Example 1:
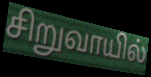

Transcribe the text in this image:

சிறுவாயில்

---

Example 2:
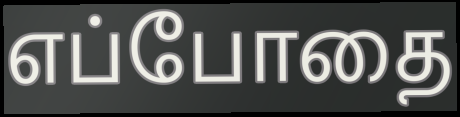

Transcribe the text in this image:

எப்போதை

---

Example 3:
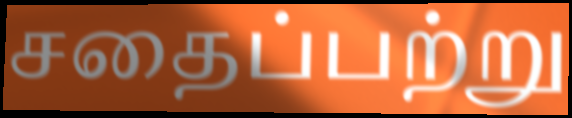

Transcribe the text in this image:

சதைப்பற்று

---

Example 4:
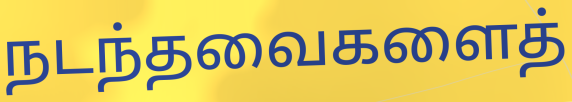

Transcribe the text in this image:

நடந்தவைகளைத்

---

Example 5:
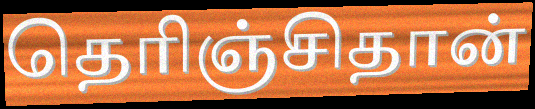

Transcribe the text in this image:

தெரிஞ்சிதான்